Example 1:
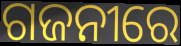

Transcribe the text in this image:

ଗଜନୀରେ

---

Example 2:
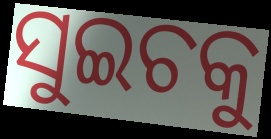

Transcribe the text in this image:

ସୁଇଚକୁ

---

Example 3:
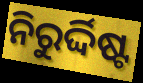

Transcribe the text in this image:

ନିରୁର୍ଦ୍ଦିଷ୍ଟ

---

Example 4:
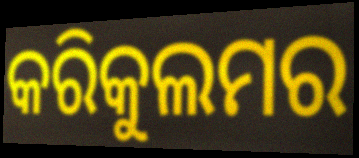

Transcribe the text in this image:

କରିକୁଲମର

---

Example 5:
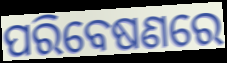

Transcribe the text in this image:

ପରିବେଷଣରେ